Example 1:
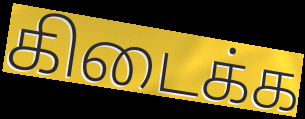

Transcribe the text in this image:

கிடைக்க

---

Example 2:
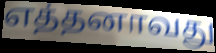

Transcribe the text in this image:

எத்தனாவது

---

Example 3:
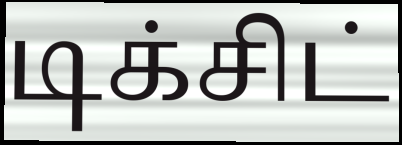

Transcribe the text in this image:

டிக்சிட்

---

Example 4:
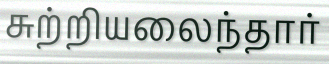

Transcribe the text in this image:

சுற்றியலைந்தார்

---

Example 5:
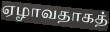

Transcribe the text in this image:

ஏழாவதாகத்